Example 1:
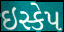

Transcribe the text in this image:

ઇસ્કેપ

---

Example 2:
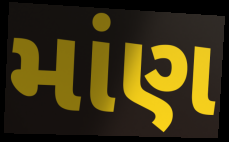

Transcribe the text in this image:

માંણ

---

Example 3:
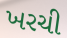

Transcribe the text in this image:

ખરચી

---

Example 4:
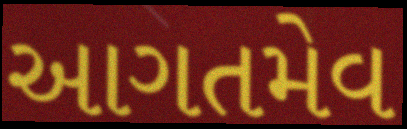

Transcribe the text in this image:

આગતમેવ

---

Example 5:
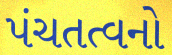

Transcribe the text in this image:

પંચતત્વનો